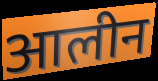
आलीन